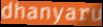
dhanyaru